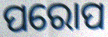
ପରୋପ